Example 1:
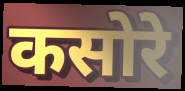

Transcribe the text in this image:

कसोरे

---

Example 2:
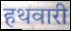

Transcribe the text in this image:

हथवारी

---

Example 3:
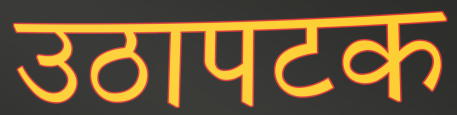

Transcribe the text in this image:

उठापटक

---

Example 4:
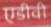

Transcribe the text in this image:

एडीवी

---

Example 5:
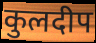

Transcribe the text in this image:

कुलदीप